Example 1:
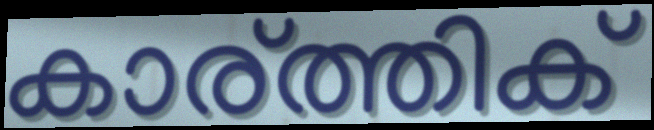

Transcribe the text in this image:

കാര്ത്തിക്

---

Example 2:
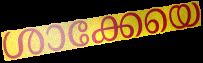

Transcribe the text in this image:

ശാക്കേയെ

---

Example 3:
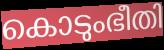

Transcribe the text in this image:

കൊടുംഭീതി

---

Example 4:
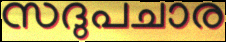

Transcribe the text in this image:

സദുപചാര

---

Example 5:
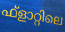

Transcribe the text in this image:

ഫ്ളാറ്റിലെ